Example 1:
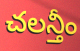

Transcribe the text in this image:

చలన్తీం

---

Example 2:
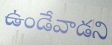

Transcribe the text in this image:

ఉండేవాడని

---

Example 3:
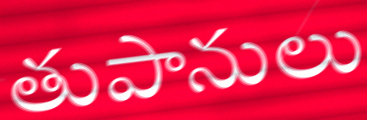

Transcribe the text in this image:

తుపానులు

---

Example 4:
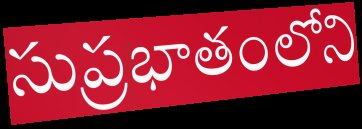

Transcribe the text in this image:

సుప్రభాతంలోని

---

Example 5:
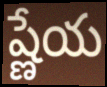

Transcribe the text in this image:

ష్ణేయ